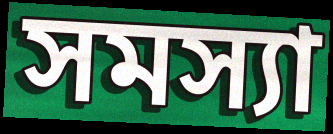
সমস্যা